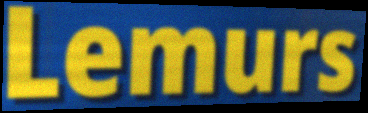
Lemurs